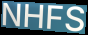
NHFS